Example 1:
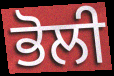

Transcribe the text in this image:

ਭੋਲੀ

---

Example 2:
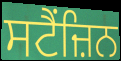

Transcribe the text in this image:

ਸਟੈਂਜ਼ਿਨ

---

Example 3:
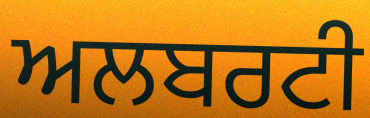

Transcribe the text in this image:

ਅਲਬਰਟੀ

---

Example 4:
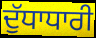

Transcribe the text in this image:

ਦੁੱਧਾਧਾਰੀ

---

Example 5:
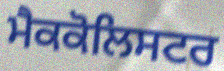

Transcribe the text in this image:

ਮੈਕਕੋਲਿਸਟਰ